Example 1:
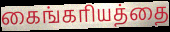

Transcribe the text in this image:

கைங்கரியத்தை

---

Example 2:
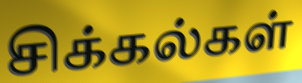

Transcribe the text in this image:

சிக்கல்கள்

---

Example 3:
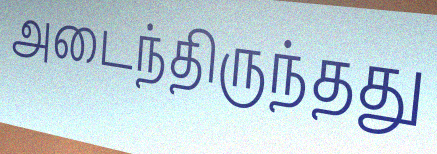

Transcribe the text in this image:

அடைந்திருந்தது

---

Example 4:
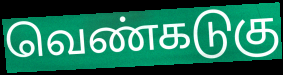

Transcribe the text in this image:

வெண்கடுகு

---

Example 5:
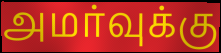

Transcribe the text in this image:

அமர்வுக்கு